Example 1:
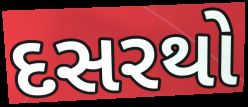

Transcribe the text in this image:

દસરથો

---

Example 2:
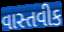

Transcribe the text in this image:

વાસ્તવીક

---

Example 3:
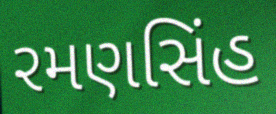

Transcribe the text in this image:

રમણસિંહ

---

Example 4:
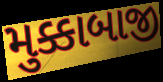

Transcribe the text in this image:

મુક્કાબાજી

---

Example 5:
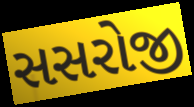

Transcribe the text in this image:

સસરોજી